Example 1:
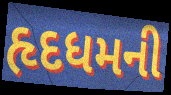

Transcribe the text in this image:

હૃદધમની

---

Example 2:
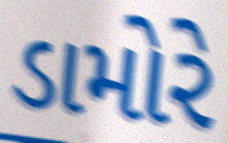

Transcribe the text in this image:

ડામોરે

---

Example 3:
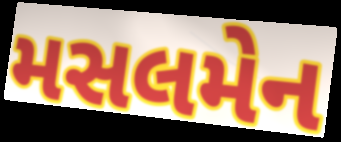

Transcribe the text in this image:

મસલમેન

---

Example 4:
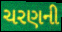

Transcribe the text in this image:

ચરણની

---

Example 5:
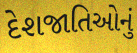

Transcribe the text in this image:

દેશજાતિઓનું